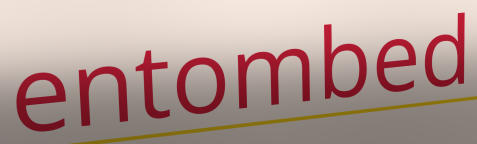
entombed